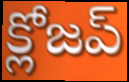
క్లోజప్